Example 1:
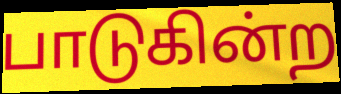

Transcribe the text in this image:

பாடுகின்ற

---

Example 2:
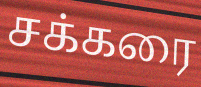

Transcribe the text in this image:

சக்கரை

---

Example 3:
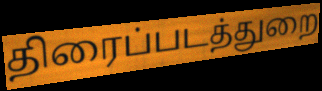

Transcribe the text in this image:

திரைப்படத்துறை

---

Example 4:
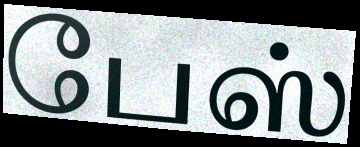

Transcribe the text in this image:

பேஸ்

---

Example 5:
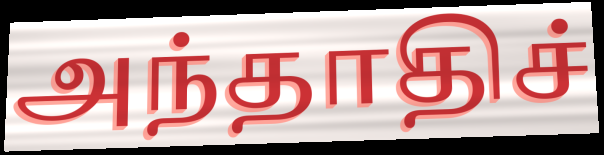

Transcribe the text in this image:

அந்தாதிச்